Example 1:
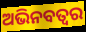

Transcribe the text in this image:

ଅଭିନବତ୍ୱର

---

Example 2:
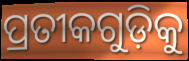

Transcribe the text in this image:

ପ୍ରତୀକଗୁଡ଼ିକୁ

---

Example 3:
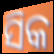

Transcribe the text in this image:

ସିକ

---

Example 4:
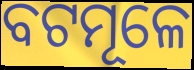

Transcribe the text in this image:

ବଟମୂଳେ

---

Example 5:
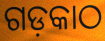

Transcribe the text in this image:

ଗଡ଼କାଠ